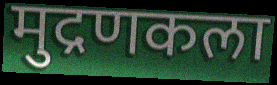
मुद्रणकला